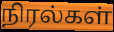
நிரல்கள்